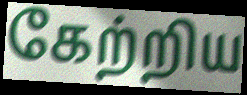
கேற்றிய